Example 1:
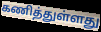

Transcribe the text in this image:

கணித்துள்ளது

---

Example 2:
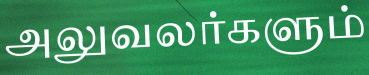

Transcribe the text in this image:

அலுவலர்களும்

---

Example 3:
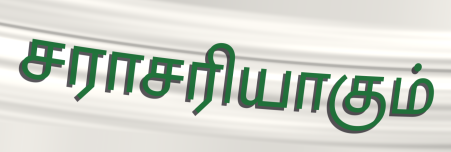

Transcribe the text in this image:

சராசரியாகும்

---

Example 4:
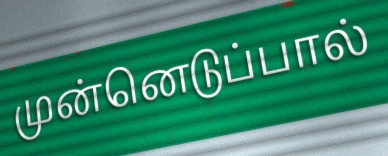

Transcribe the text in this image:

முன்னெடுப்பால்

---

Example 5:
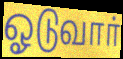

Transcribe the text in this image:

ஓடுவார்